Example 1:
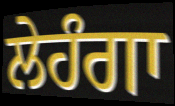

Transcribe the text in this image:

ਲੇਹੰਗਾ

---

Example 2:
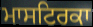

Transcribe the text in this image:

ਮਾਸਟਿਰਕਾ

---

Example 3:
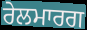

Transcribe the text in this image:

ਰੇਲਮਾਰਗ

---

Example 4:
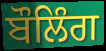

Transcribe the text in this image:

ਬੌਲਿੰਗ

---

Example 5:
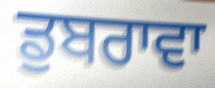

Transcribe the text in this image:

ਡੁਬਰਾਵਾ